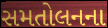
સમતોલનના